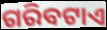
ଗରିବଟାଏ